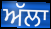
ਅੱਲਾ